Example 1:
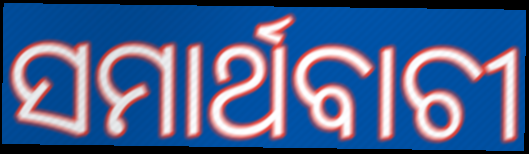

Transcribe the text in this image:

ସମାର୍ଥବାଚୀ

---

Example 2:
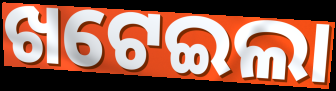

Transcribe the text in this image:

ଖଟେଇଲା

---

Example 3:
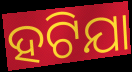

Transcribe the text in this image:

ହଟିଯା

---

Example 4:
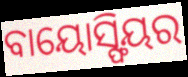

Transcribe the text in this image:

ବାୟୋସ୍ଫିୟର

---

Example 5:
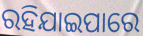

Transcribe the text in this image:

ରହିଯାଇପାରେ